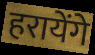
हरायेंगे